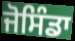
ਜੋਸਿੰਡਾ